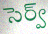
సెర్వ్